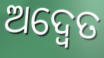
ଅଦ୍ଵେତ